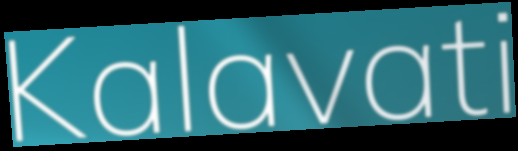
Kalavati